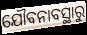
ଯୌବନାବସ୍ଥାରୁ